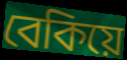
বেকিয়ে